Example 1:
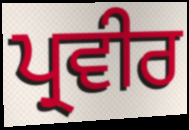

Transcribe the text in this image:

ਪ੍ਰਵੀਰ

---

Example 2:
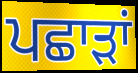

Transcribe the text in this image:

ਪਛਾੜਾਂ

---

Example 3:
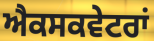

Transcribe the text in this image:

ਐਕਸਕਵੇਟਰਾਂ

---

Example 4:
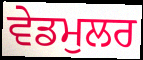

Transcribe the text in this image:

ਵੇਡਮੁਲਰ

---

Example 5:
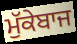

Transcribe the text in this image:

ਮੁੱਕੇਬਾਜ